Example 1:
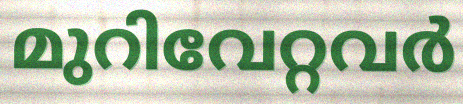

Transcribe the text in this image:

മുറിവേറ്റവർ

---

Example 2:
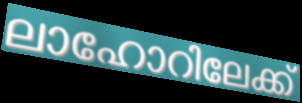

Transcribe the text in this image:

ലാഹോറിലേക്ക്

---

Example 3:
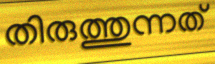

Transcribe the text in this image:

തിരുത്തുന്നത്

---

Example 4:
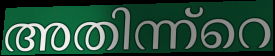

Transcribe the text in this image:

അതിന്ന്റെ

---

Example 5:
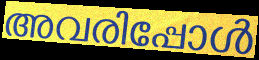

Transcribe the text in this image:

അവരിപ്പോൾ